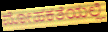
ಮೋಹಕತೆಯಲ್ಲಿ